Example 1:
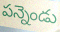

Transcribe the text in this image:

పన్నెండు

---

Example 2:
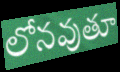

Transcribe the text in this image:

లోనవుతూ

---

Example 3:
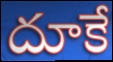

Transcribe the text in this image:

దూకే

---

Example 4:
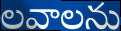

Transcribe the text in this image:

లవాలను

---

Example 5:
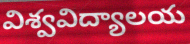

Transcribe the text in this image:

విశ్వవిద్యాలయ